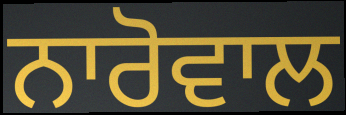
ਨਾਰੋਵਾਲ